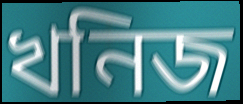
খনিজ